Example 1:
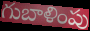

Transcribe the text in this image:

గుబాళింపు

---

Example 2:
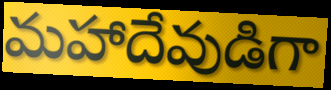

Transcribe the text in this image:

మహాదేవుడిగా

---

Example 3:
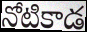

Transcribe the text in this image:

నోటికాడ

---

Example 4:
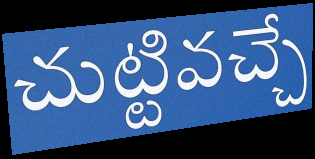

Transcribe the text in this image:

చుట్టివచ్చే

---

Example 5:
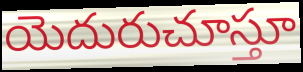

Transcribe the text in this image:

యెదురుచూస్తూ